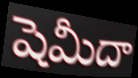
షెమీదా